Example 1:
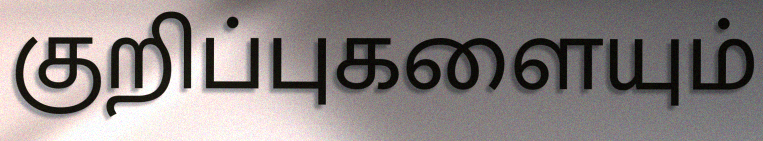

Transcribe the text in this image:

குறிப்புகளையும்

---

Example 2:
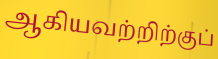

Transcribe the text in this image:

ஆகியவற்றிற்குப்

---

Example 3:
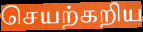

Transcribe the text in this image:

செயற்கறிய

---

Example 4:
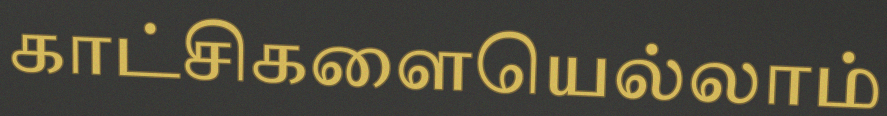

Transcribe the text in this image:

காட்சிகளையெல்லாம்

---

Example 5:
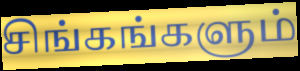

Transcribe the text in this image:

சிங்கங்களும்